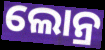
ଲୋନ୍ର